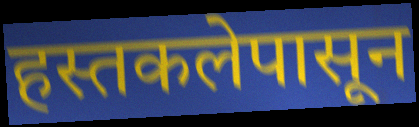
हस्तकलेपासून